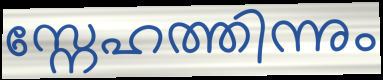
സ്നേഹത്തിന്നും